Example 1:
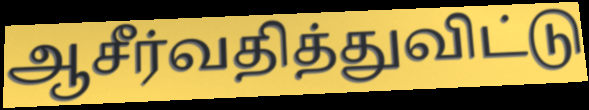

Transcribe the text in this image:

ஆசீர்வதித்துவிட்டு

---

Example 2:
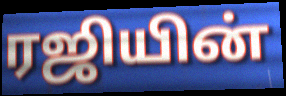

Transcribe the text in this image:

ரஜியின்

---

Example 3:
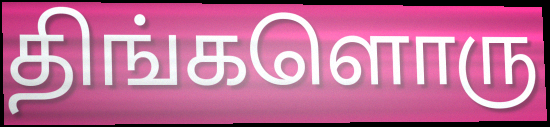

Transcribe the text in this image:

திங்களொரு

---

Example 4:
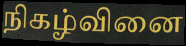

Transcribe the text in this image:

நிகழ்வினை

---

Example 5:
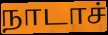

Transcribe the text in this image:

நாடாச்